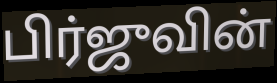
பிர்ஜுவின்